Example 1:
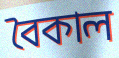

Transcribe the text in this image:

বৈকাল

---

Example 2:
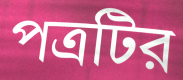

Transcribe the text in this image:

পত্রটির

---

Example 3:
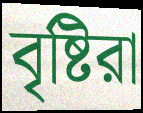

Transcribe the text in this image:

বৃষ্টিরা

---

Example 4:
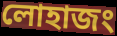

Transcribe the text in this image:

লোহাজং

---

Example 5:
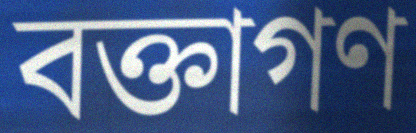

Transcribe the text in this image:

বক্তাগণ